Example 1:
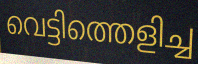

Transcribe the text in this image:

വെട്ടിത്തെളിച്ച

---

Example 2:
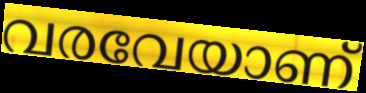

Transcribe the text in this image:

വരവേയാണ്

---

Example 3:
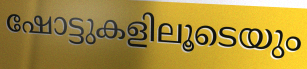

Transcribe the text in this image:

ഷോട്ടുകളിലൂടെയും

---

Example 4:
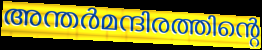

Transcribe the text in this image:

അന്തർമന്ദിരത്തിന്റെ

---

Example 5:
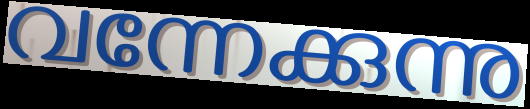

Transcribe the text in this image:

വന്നേക്കുന്നു